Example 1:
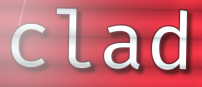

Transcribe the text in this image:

clad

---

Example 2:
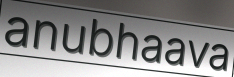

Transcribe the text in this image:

anubhaava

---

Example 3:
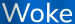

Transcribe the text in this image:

Woke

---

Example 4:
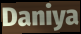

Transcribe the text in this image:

Daniya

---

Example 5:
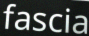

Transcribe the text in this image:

fascia